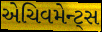
એચિવમેન્ટ્સ